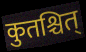
कुतश्चित्